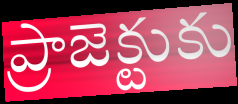
ప్రాజెక్టుకు